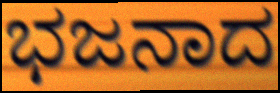
ಭಜನಾದ